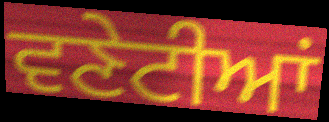
ਵਣੇਟੀਆਂ